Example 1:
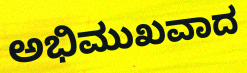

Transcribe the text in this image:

ಅಭಿಮುಖವಾದ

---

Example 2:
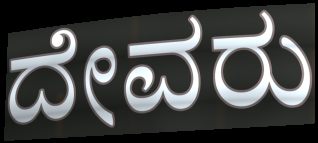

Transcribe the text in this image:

ದೇವರು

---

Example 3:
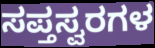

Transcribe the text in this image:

ಸಪ್ತಸ್ವರಗಳ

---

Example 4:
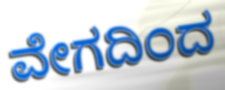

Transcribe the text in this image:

ವೇಗದಿಂದ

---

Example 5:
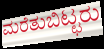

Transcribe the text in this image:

ಮರೆತುಬಿಟ್ಟರು